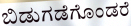
ಬಿಡುಗಡೆಗೊಂಡರೆ